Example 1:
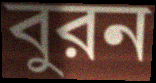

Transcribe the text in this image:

বুরন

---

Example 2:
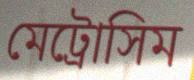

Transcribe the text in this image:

মেট্রোসিম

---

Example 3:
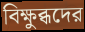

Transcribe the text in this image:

বিক্ষুব্ধদের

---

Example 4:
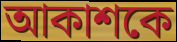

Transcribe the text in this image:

আকাশকে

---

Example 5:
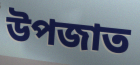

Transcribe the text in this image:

উপজাত